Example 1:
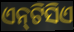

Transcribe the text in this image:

ଏନ୍‌ଟିସିଏ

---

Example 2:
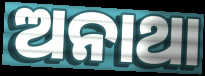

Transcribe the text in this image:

ଅନାଥା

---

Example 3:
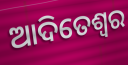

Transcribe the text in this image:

ଆଦିତେଶ୍ଵର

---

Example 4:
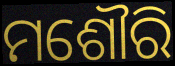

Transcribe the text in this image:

ମଶୌରି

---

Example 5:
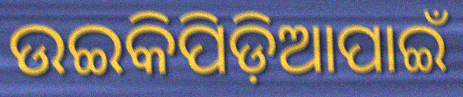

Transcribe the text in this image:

ଉଇକିପିଡ଼ିଆପାଇଁ